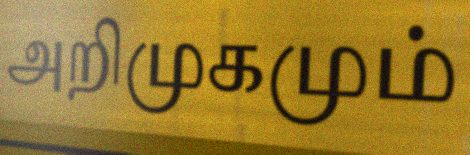
அறிமுகமும்